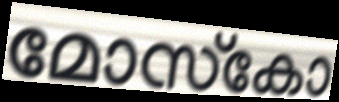
മോസ്‌കോ